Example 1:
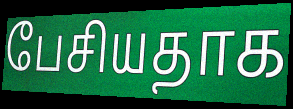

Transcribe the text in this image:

பேசியதாக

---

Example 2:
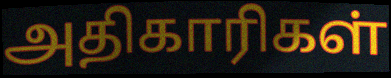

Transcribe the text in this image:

அதிகாரிகள்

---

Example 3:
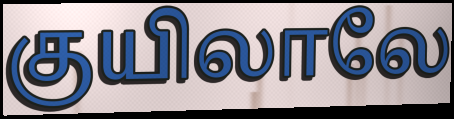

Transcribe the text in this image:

குயிலாலே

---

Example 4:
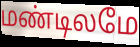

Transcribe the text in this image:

மண்டிலமே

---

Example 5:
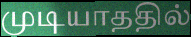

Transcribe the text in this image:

முடியாததில்